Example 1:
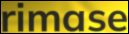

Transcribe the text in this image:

rimase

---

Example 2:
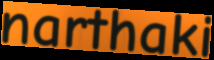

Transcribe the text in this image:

narthaki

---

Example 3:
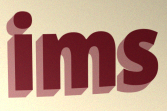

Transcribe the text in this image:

ims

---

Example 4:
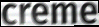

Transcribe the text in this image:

creme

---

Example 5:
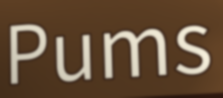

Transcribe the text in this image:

Pums